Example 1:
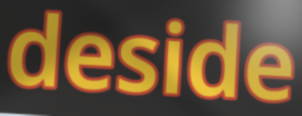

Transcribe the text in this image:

deside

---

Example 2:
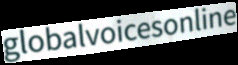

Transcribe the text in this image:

globalvoicesonline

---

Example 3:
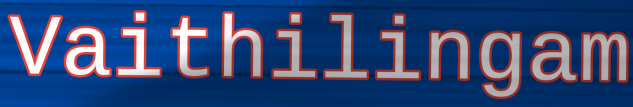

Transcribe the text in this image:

Vaithilingam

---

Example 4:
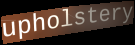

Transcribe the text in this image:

upholstery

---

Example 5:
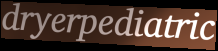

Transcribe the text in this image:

dryerpediatric